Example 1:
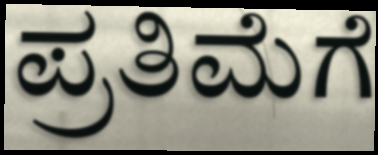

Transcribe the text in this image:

ಪ್ರತಿಮೆಗೆ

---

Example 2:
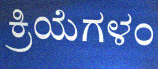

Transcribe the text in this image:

ಕ್ರಿಯೆಗಳಂ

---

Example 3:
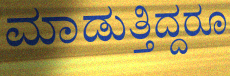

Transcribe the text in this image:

ಮಾಡುತ್ತಿದ್ದರೂ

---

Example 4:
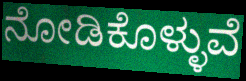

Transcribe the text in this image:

ನೋಡಿಕೊಳ್ಳುವೆ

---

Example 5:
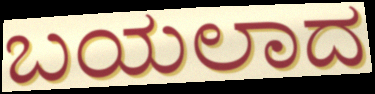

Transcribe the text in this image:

ಬಯಲಾದ